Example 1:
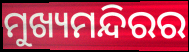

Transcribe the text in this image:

ମୁଖ୍ୟମନ୍ଦିରର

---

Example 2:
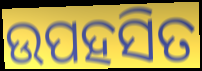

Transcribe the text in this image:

ଉପହସିତ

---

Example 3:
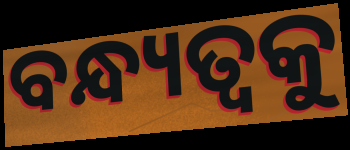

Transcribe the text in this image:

ବନ୍ଧ୍ୟତ୍ୱକୁ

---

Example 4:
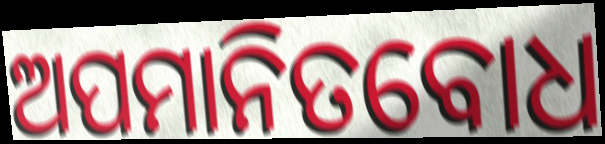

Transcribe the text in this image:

ଅପମାନିତବୋଧ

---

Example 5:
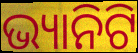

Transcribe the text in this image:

ଭ୍ୟାନିଟି